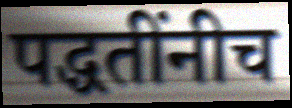
पद्धतींनीच